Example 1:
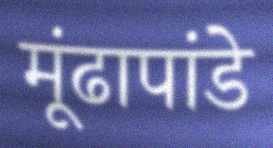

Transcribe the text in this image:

मूंढापांडे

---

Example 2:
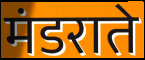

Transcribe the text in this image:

मंडराते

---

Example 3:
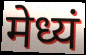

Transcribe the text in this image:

मेध्यं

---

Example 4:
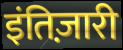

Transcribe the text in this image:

इंतिज़ारी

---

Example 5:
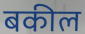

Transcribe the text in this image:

बकील